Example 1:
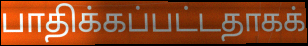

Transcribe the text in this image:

பாதிக்கப்பட்டதாகக்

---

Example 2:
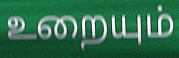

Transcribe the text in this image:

உறையும்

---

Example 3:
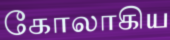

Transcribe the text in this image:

கோலாகிய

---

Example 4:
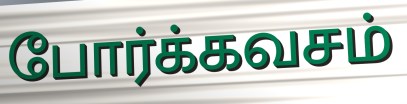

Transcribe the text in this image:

போர்க்கவசம்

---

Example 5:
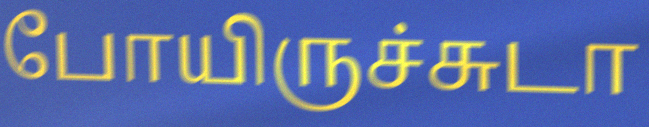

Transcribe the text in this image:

போயிருச்சுடா